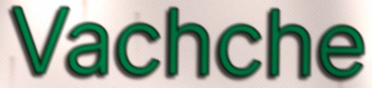
Vachche